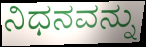
ನಿಧನವನ್ನು